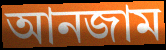
আনজাম